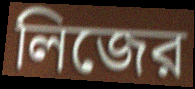
লিজের